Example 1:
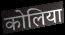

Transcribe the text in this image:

कोलिया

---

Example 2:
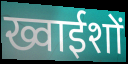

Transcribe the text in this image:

ख्वाईशों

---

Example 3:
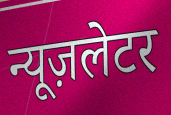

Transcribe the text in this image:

न्यूज़लेटर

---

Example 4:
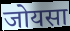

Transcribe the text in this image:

जोयसा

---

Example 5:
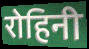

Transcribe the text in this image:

रोहिनी